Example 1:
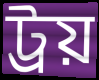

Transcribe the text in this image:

ট্ৰয়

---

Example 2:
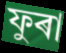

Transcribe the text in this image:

ফুৰা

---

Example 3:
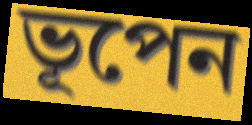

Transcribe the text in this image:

ভূপেন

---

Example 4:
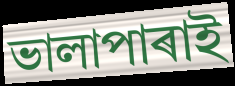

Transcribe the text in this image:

ভালাপাৰাই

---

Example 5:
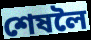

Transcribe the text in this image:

শেষলৈ